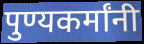
पुण्यकर्मांनी